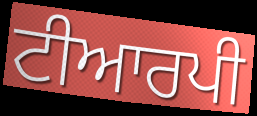
ਟੀਆਰਪੀ